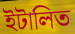
ইটালিত